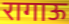
रागाऊ